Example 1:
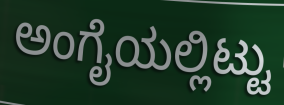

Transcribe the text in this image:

ಅಂಗೈಯಲ್ಲಿಟ್ಟು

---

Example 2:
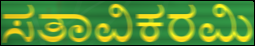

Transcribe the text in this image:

ಸತಾವಿಕರಮಿ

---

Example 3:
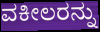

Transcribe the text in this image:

ವಕೀಲರನ್ನು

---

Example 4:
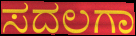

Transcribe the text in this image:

ಸದಲಗಾ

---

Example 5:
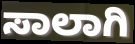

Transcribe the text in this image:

ಸಾಲಾಗಿ